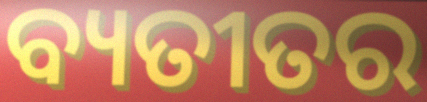
ବ୍ୟତୀତର